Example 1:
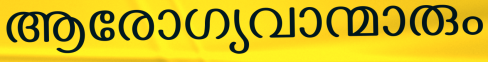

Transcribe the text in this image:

ആരോഗ്യവാന്മാരും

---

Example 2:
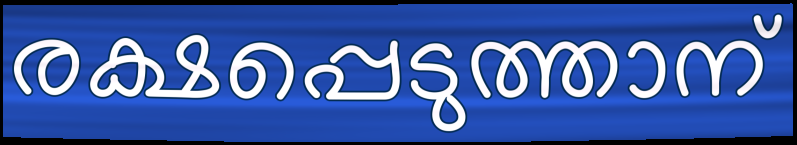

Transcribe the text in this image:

രക്ഷപ്പെടുത്താന്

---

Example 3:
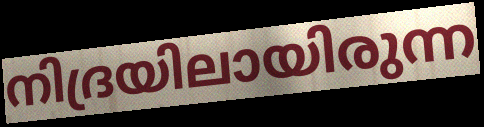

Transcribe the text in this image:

നിദ്രയിലായിരുന്ന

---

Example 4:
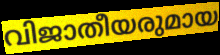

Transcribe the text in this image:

വിജാതീയരുമായ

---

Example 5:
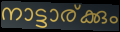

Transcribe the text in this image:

നാട്ടാര്ക്കും